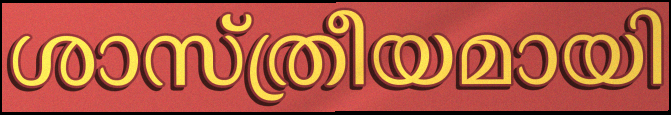
ശാസ്ത്രീയമായി